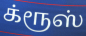
க்ரூஸ்